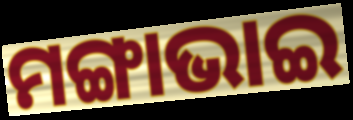
ମଙ୍ଗାଭାଇ